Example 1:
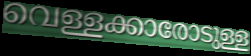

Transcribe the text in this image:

വെള്ളക്കാരോടുള്ള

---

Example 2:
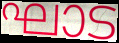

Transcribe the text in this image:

ഘാട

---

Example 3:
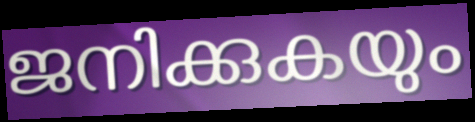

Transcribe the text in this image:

ജനിക്കുകയും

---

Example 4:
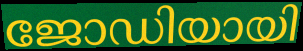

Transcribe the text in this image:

ജോഡിയായി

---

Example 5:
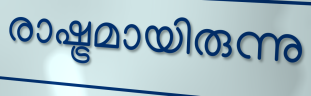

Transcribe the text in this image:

രാഷ്ട്രമായിരുന്നു